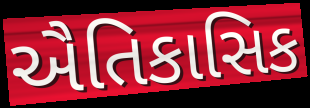
ઐતિકાસિક